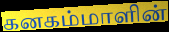
கனகம்மாளின்